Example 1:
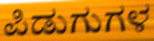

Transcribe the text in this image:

ಪಿಡುಗುಗಳ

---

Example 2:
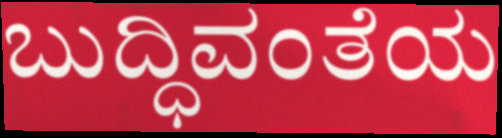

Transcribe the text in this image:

ಬುದ್ಧಿವಂತೆಯ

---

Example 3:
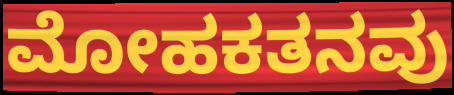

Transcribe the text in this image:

ಮೋಹಕತನವು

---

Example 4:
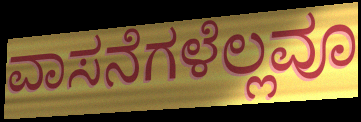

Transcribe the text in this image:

ವಾಸನೆಗಳೆಲ್ಲವೂ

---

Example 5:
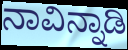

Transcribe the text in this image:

ನಾವಿನ್ನಾಡಿ